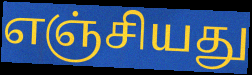
எஞ்சியது